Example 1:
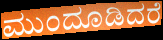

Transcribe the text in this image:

ಮುಂದೂಡಿದರೆ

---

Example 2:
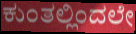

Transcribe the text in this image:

ಕುಂತಲ್ಲಿಂದಲೇ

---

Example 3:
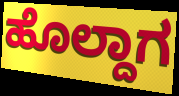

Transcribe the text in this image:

ಹೊಲ್ದಾಗ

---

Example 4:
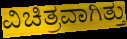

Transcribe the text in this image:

ವಿಚಿತ್ರವಾಗಿತ್ತು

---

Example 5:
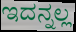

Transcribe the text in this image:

ಇದನ್ನಲ್ಲ